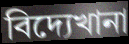
বিদ্যেখানা